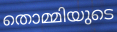
തൊമ്മിയുടെ